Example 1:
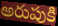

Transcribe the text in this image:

అరుపుకి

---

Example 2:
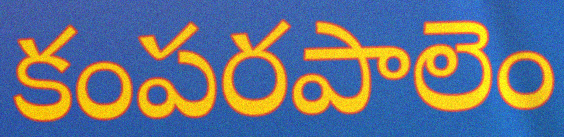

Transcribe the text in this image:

కంపరపాలెం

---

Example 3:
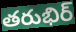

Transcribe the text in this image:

తరుభిర్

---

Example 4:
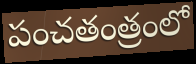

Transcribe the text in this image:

పంచతంత్రంలో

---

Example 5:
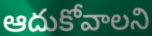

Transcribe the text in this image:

ఆదుకోవాలని